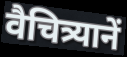
वैचित्र्यानें